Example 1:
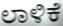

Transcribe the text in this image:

ಲಾಳಿಕೆ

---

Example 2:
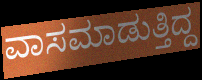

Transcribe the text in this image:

ವಾಸಮಾಡುತ್ತಿದ್ದ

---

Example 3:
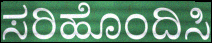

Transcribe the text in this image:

ಸರಿಹೊಂದಿಸಿ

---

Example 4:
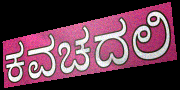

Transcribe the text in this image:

ಕವಚದಲಿ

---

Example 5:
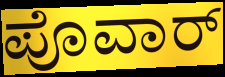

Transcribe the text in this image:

ಪೊವಾರ್